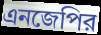
এনজেপির